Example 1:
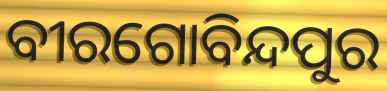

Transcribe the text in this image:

ବୀରଗୋବିନ୍ଦପୁର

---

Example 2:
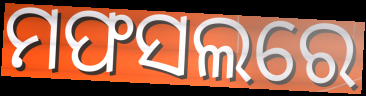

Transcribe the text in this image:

ମଫସଲରେ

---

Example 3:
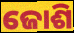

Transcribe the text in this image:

ଜୋଶି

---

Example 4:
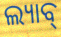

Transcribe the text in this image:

ଲ୍ୟାବ୍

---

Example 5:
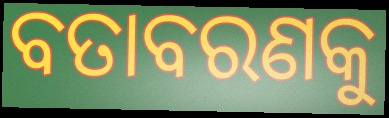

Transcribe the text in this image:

ବତାବରଣକୁ